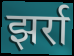
झर्रा